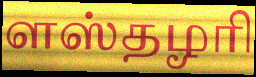
ளஸ்தழரி